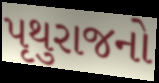
પૃથુરાજનો